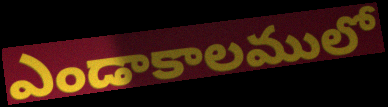
ఎండాకాలములో